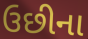
ઉછીના